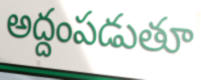
అద్దంపడుతూ